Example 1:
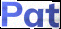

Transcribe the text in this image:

Pat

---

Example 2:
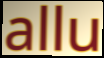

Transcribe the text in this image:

allu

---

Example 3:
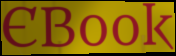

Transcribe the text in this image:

EBook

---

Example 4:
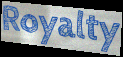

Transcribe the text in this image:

Royalty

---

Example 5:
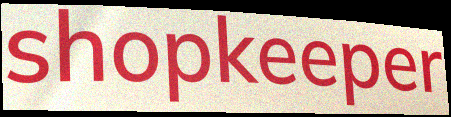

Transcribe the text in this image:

shopkeeper